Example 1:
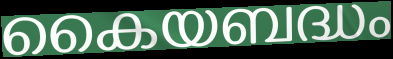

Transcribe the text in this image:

കൈയബദ്ധം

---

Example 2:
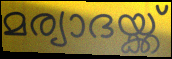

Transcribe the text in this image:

മര്യാദയ്ക്ക്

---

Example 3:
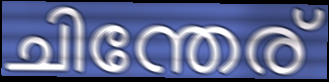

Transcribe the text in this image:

ചിന്തേര്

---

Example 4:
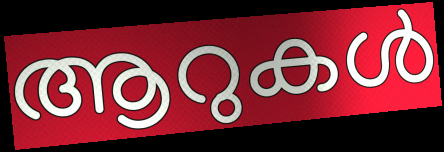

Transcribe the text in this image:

ആറുകൾ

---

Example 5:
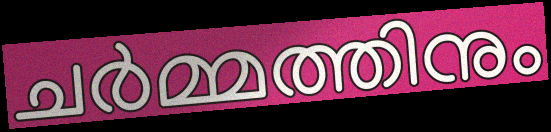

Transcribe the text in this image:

ചർമ്മത്തിനും